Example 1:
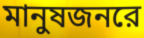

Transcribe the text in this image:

মানুষজনরে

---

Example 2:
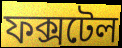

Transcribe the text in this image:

ফক্সটেল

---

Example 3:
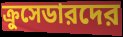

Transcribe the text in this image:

ক্রুসেডারদের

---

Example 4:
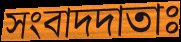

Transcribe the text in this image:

সংবাদদাতাঃ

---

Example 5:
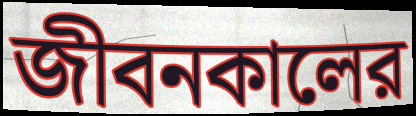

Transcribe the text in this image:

জীবনকালের